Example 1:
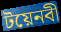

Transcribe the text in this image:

টয়েনবী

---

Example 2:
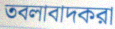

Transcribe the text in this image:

তবলাবাদকরা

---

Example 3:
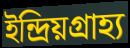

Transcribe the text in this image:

ইন্দ্রিয়গ্রাহ্য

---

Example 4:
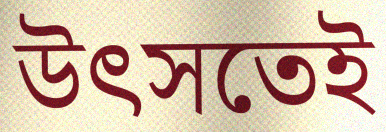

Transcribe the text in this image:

উৎসতেই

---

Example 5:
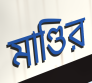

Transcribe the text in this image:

মাণ্ডির